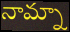
నామ్నా